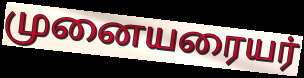
முனையரையர்